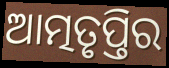
ଆତ୍ମତୃପ୍ତିର